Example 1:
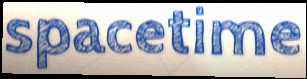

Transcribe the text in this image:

spacetime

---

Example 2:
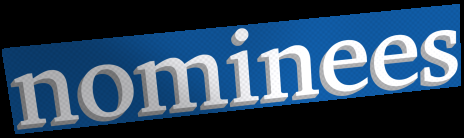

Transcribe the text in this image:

nominees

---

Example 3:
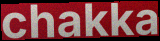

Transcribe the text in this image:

chakka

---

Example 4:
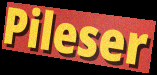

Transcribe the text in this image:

Pileser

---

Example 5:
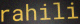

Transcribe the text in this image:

rahili